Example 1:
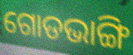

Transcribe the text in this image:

ଗୋଡଭାଙ୍ଗି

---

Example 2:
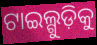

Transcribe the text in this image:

ଟାଇଲ୍ଗୁଡ଼ିକୁ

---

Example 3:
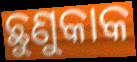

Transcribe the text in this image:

ଛୁଣୁକାକ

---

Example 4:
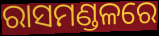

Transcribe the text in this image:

ରାସମଣ୍ଡଳରେ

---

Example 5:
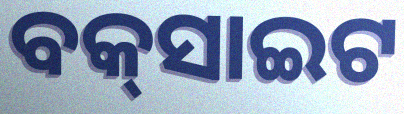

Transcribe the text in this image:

ବକ୍‌ସାଇଟ